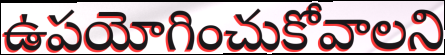
ఉపయోగించుకోవాలని